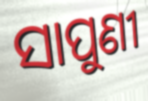
ସାପୁଣୀ